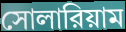
সোলারিয়াম